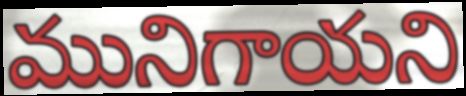
మునిగాయని